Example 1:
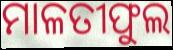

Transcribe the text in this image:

ମାଳତୀଫୁଲ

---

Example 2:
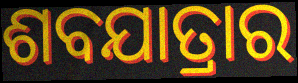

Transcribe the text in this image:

ଶବଯାତ୍ରାର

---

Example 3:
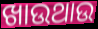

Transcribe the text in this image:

ଖାଉଥାଉ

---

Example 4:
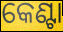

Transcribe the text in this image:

କେଣ୍ଟା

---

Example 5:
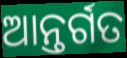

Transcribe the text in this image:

ଆନ୍ତର୍ଗତ